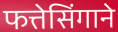
फत्तेसिंगाने